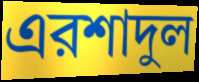
এরশাদুল